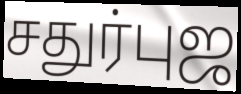
சதுர்புஜ